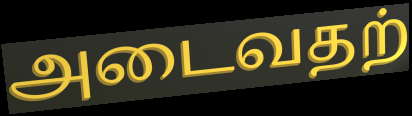
அடைவதற்